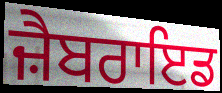
ਜ਼ੈਬਰਾਇਡ